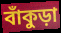
বাঁকুড়া